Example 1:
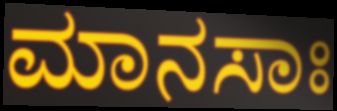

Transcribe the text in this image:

ಮಾನಸಾಃ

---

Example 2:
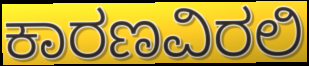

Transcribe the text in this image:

ಕಾರಣವಿರಲಿ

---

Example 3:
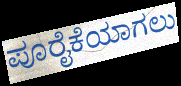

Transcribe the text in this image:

ಪೂರೈಕೆಯಾಗಲು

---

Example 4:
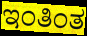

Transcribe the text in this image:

ಇಂತಿಂತ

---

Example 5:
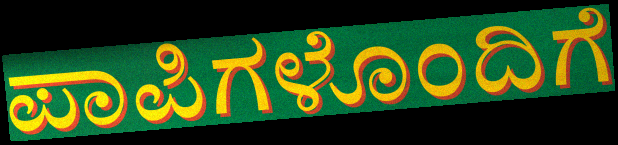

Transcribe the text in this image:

ಪಾಪಿಗಳೊಂದಿಗೆ